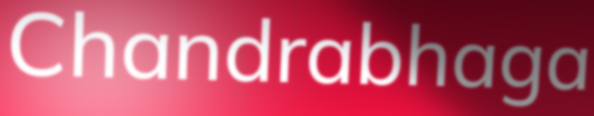
Chandrabhaga